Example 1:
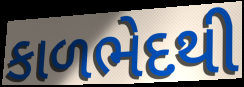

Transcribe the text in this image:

કાળભેદથી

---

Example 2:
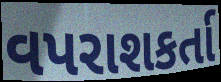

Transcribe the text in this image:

વપરાશકર્તા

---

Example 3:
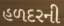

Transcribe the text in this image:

હળદરની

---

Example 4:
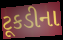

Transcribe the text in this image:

ટૂકડીના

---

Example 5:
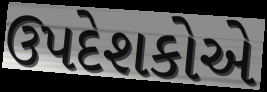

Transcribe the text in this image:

ઉપદેશકોએ